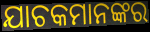
ଯାଚକମାନଙ୍କର